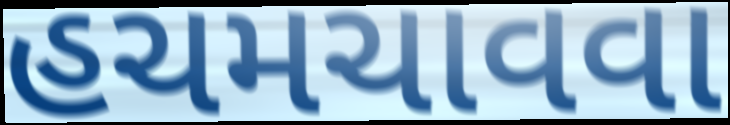
હચમચાવવા